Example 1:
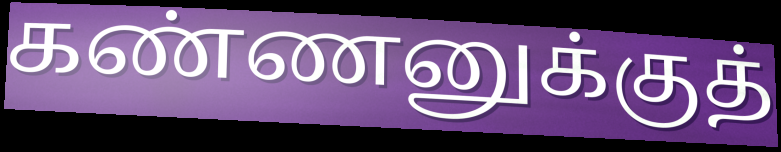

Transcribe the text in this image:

கண்ணனுக்குத்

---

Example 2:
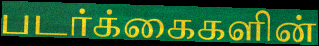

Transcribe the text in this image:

படர்க்கைகளின்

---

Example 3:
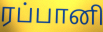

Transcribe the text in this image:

ரப்பானி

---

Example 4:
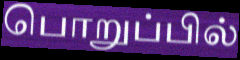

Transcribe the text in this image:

பொறுப்பில்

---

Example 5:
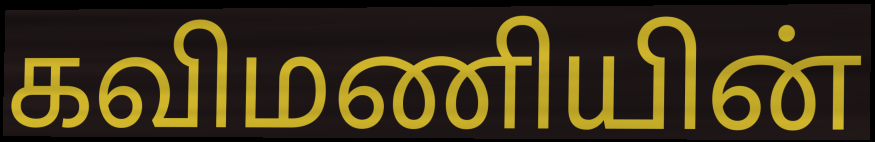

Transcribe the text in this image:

கவிமணியின்